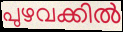
പുഴവക്കിൽ